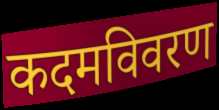
कदमविवरण